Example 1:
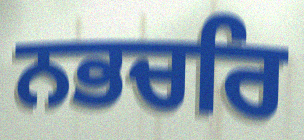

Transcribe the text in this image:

ਨਭਚਰਿ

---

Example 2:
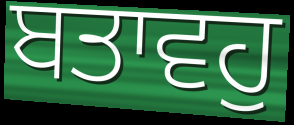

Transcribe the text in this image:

ਬਤਾਵਹੁ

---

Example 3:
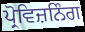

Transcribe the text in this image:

ਪ੍ਰੋਵਿਜ਼ਨਿੰਗ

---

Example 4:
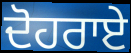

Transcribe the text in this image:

ਦੋਹਰਾਏ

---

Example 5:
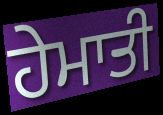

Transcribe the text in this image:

ਹੇਮਾਤੀ